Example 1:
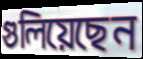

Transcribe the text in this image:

গুলিয়েছেন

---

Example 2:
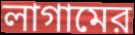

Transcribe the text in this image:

লাগামের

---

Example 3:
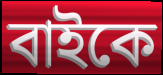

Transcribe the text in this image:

বাইকে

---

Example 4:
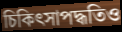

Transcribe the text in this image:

চিকিৎসাপদ্ধতিও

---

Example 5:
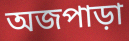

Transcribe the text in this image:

অজপাড়া